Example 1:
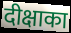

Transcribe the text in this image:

दीक्षाका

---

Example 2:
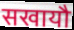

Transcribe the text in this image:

सखायौ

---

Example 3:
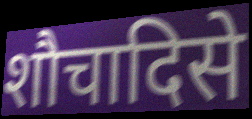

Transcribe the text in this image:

शौचादिसे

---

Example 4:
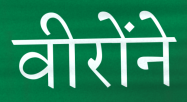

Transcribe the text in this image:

वीरोंने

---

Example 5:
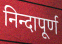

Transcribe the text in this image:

निन्दापूर्ण